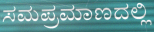
ಸಮಪ್ರಮಾಣದಲ್ಲಿ